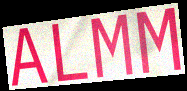
ALMM